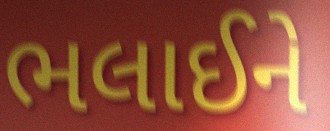
ભલાઈને